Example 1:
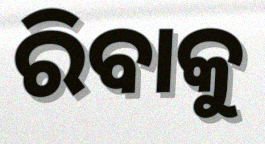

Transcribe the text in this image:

ରିବାକୁ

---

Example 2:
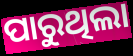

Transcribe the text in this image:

ପାରୁଥିଲା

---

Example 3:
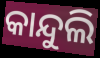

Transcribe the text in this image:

କାନ୍ଦୁଲି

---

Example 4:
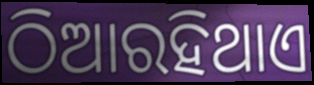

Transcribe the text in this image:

ଠିଆରହିଥାଏ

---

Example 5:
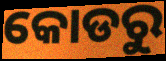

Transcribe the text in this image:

କୋଡରୁ